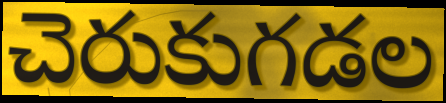
చెరుకుగడల